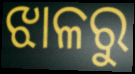
ଝାଳରୁ